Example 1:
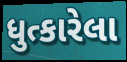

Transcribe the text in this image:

ધુત્કારેલા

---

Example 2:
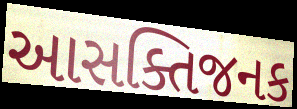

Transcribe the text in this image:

આસક્તિજનક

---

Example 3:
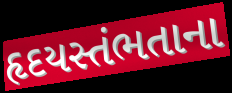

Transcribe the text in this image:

હૃદયસ્તંભતાના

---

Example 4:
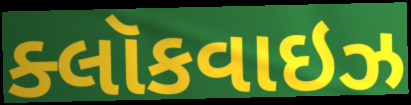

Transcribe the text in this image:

ક્લૉકવાઇઝ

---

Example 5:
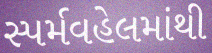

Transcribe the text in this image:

સ્પર્મવહેલમાંથી